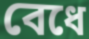
বেধে